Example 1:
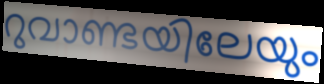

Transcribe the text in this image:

റുവാണ്ടയിലേയും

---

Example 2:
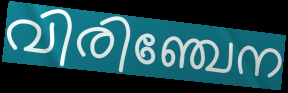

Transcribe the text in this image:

വിരിഞ്ചേന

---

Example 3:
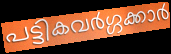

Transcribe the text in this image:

പട്ടികവർഗ്ഗക്കാർ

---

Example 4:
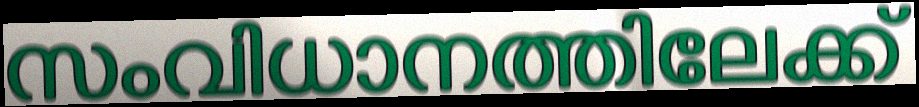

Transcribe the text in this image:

സംവിധാനത്തിലേക്ക്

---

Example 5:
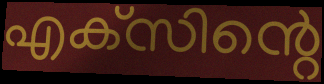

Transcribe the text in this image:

എക്‌സിന്റെ